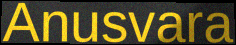
Anusvara